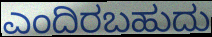
ಎಂದಿರಬಹುದು